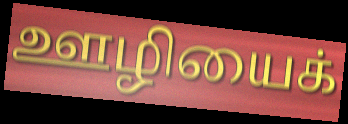
ஊழியைக்